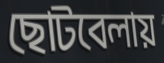
ছোটবেলায়